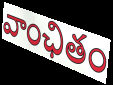
వాంఛితం